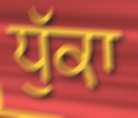
ਧੁੱਕਾ